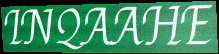
INQAAHE